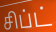
சிப்ட்